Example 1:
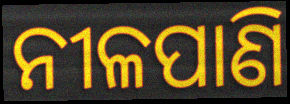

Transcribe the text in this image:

ନୀଳପାଣି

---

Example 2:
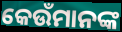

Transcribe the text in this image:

କେଉଁମାନଙ୍କ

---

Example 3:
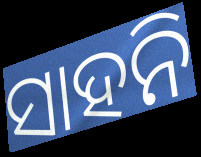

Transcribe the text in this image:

ସାହନି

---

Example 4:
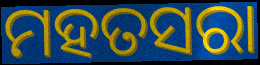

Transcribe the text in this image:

ମହତସରା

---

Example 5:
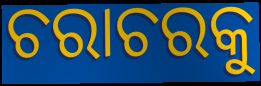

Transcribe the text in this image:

ଚରାଚରକୁ